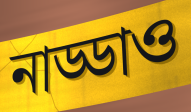
নাড্ডাও